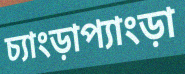
চ্যাংড়াপ্যাংড়া